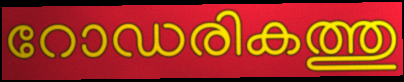
റോഡരികത്തു